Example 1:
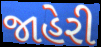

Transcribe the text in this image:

જાહેરી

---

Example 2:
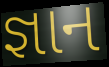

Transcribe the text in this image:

જ્ઞાન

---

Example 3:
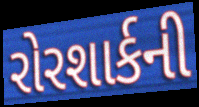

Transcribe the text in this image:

રોરશાર્કની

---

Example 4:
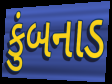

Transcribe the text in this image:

કુંબનાડ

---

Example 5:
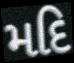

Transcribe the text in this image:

મદિ